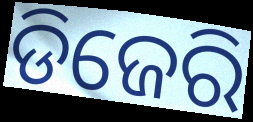
ଡିଜେରି